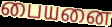
பையனை